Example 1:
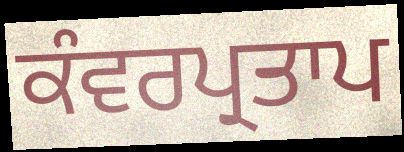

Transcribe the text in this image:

ਕੰਵਰਪ੍ਰਤਾਪ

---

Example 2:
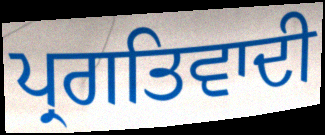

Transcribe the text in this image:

ਪ੍ਰਗਤਿਵਾਦੀ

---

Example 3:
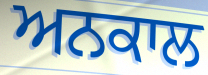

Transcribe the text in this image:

ਅਨਕਾਲ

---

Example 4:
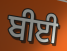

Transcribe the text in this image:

ਬੀਈ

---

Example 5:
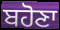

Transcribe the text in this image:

ਬਹੋਣਾ